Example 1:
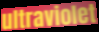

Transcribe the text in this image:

ultraviolet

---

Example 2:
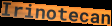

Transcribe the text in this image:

Irinotecan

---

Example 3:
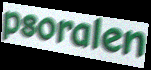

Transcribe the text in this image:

psoralen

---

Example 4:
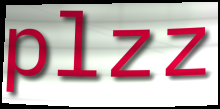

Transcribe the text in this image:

plzz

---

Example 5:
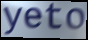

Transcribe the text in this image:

yeto